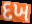
દખ